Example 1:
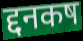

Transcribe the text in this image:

द्दनकष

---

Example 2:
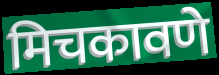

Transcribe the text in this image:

मिचकावणे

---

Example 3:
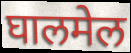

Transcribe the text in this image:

घालमेल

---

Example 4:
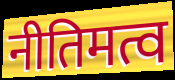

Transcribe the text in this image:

नीतिमत्व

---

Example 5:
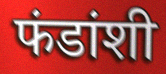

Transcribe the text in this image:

फंडांशी